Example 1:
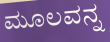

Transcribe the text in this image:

ಮೂಲವನ್ನ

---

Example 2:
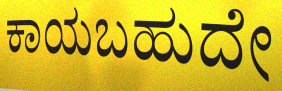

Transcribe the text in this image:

ಕಾಯಬಹುದೇ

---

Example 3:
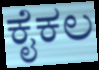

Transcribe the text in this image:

ಕೈಕಲ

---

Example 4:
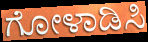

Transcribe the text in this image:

ಗೋಳಾಡಿಸಿ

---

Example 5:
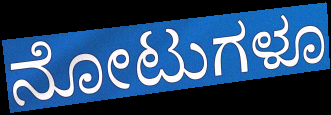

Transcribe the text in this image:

ನೋಟುಗಳೂ